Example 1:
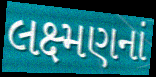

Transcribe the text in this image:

લક્ષ્મણનાં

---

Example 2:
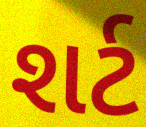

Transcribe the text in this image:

શર્ટ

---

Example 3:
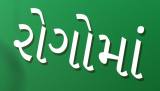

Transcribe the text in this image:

રોગોમાં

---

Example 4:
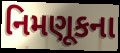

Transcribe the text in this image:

નિમણૂકના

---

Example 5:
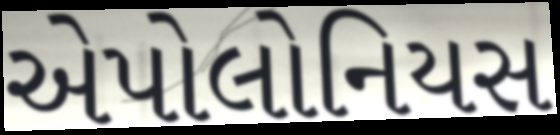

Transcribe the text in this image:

એપોલોનિયસ